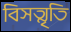
বিসত্মৃতি